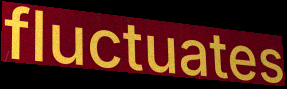
fluctuates